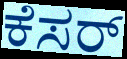
ಕೆಸರ್